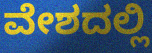
ವೇಶದಲ್ಲಿ